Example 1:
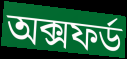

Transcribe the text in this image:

অক্সফৰ্ড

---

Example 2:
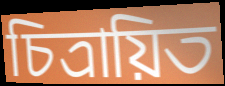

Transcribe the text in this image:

চিত্ৰায়িত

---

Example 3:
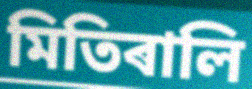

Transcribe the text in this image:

মিতিৰালি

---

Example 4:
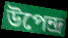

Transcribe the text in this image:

উপেন্দ্ৰ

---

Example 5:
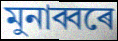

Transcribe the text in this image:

মুনাব্বৰে